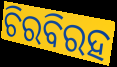
ଚିରବିରହ